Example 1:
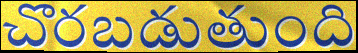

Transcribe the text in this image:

చొరబడుతుంది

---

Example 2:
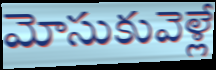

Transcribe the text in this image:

మోసుకువెళ్లే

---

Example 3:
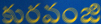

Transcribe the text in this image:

కురవంజి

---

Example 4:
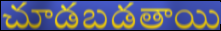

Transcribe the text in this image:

చూడబడతాయి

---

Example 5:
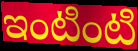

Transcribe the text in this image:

ఇంటింటి